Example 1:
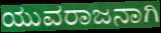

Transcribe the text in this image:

ಯುವರಾಜನಾಗಿ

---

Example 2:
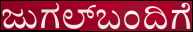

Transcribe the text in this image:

ಜುಗಲ್‌ಬಂದಿಗೆ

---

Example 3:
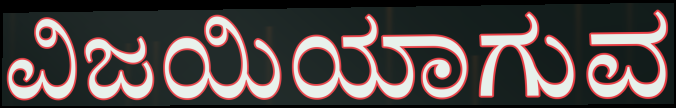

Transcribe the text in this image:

ವಿಜಯಿಯಾಗುವ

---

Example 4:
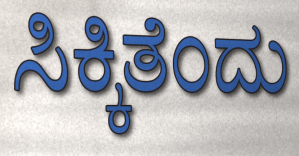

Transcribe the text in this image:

ಸಿಕ್ಕಿತೆಂದು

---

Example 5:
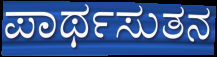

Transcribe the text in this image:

ಪಾರ್ಥಸುತನ